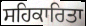
ਸਹਿਕਾਰਿਤਾ